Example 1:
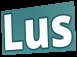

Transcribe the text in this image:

Lus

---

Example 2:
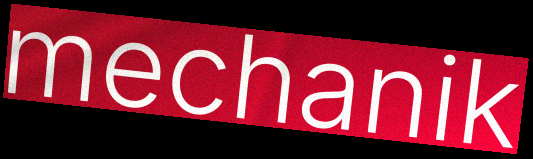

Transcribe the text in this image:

mechanik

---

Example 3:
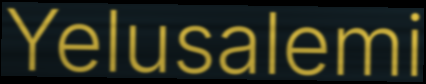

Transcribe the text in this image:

Yelusalemi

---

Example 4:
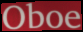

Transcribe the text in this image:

Oboe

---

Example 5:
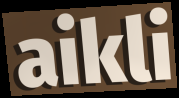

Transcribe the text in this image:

aikli